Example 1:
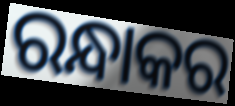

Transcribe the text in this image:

ରନ୍ଧାକର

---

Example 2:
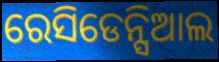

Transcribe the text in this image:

ରେସିଡେନ୍ସିଆଲ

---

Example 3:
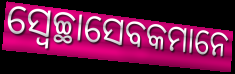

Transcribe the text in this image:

ସ୍ୱେଚ୍ଛାସେବକମାନେ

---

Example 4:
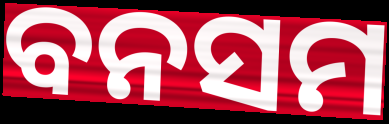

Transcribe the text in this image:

ବନସମ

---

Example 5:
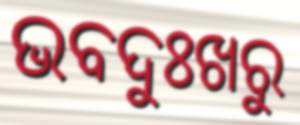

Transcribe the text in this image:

ଭବଦୁଃଖରୁ